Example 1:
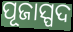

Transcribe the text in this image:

ପୂଜାସ୍ପଦ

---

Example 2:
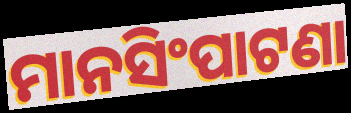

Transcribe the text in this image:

ମାନସିଂପାଟଣା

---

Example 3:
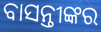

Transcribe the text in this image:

ବାସନ୍ତୀଙ୍କର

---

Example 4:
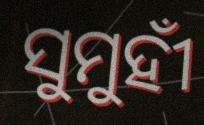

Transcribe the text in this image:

ସୁମୁହୀଁ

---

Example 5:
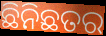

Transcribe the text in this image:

ଛିନିଛତର